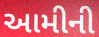
આમીની